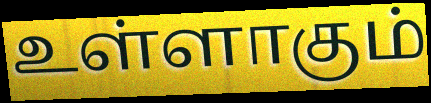
உள்ளாகும்